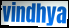
vindhya